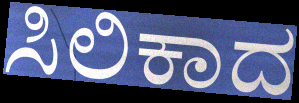
ಸಿಲಿಕಾದ